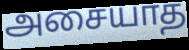
அசையாத